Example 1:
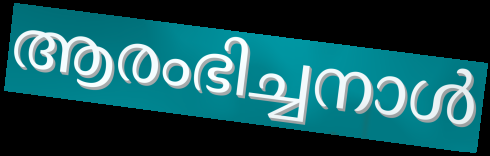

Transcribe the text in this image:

ആരംഭിച്ചനാൾ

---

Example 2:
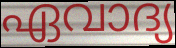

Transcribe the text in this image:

ഏവാദ്യ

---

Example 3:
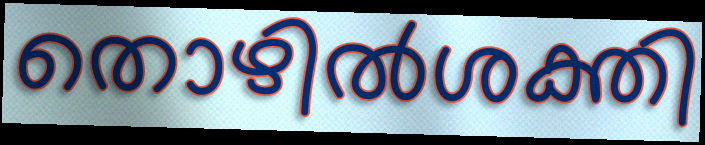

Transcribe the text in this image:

തൊഴിൽശക്തി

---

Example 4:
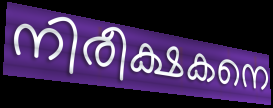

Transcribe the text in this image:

നിരീക്ഷകനെ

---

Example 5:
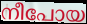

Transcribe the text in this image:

നീപോയ